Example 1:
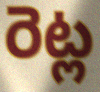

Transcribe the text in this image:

రెట్ల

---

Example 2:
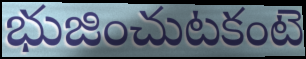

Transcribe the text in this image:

భుజించుటకంటె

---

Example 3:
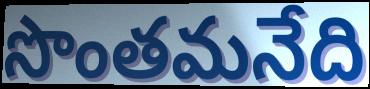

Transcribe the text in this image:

సొంతమనేది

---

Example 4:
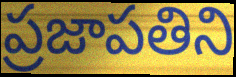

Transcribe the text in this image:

ప్రజాపతిని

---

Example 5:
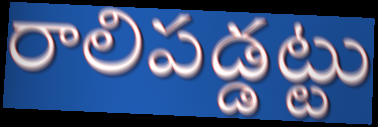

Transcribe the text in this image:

రాలిపడ్డట్టు